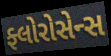
ફ્લોરોસેન્સ